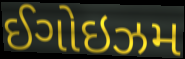
ઈગોઇઝમ